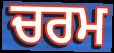
ਚਰਮ